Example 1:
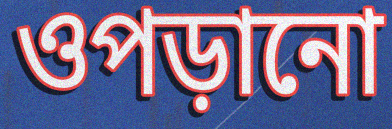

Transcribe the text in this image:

ওপড়ানো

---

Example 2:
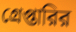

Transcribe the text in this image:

গ্রেপ্তারির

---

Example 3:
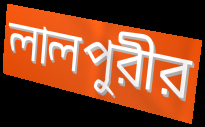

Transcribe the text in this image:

লালপুরীর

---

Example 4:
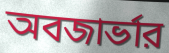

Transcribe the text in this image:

অবজার্ভার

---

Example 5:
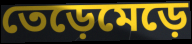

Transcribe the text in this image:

তেড়েমেড়ে